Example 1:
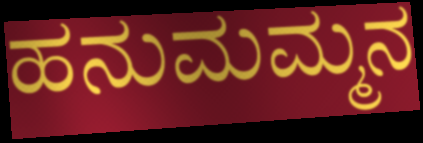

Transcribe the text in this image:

ಹನುಮಮ್ಮನ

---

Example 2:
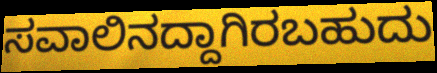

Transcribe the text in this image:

ಸವಾಲಿನದ್ದಾಗಿರಬಹುದು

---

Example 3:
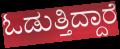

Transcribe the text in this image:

ಓಡುತ್ತಿದ್ದಾರೆ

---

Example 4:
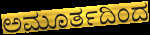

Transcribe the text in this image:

ಅಮೂರ್ತದಿಂದ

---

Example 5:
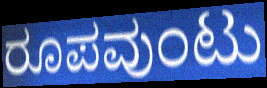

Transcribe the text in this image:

ರೂಪವುಂಟು